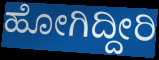
ಹೋಗಿದ್ದೀರಿ